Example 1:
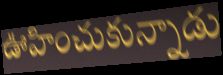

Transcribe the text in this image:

ఊహించుకున్నాడు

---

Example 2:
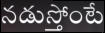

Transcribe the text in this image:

నడుస్తోంటే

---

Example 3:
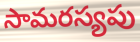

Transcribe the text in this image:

సామరస్యపు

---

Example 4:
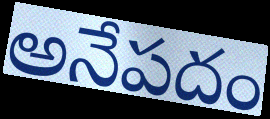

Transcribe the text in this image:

అనేపదం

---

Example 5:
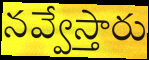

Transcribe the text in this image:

నవ్వేస్తారు